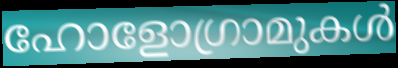
ഹോളോഗ്രാമുകൾ